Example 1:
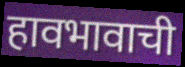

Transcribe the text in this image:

हावभावाची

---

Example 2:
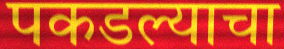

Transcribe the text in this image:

पकडल्याचा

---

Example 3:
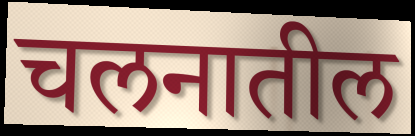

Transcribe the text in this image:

चलनातील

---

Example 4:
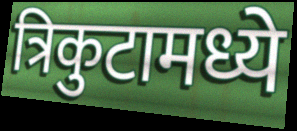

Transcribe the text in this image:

त्रिकुटामध्ये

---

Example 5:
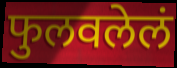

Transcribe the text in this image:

फुलवलेलं